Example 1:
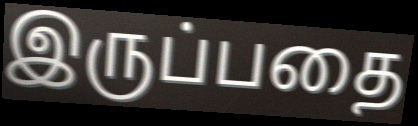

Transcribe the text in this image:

இருப்பதை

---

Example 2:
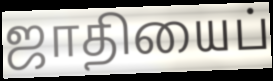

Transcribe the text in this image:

ஜாதியைப்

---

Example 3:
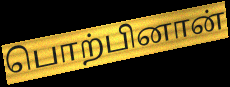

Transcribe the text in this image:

பொற்பினான்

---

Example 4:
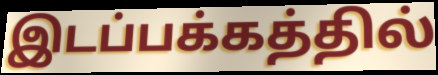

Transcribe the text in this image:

இடப்பக்கத்தில்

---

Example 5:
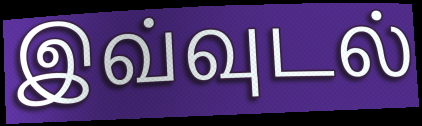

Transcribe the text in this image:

இவ்வுடல்